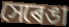
সেৰেঙা